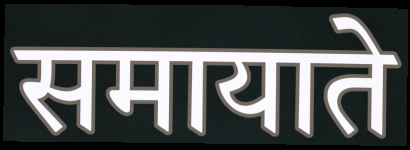
समायाते